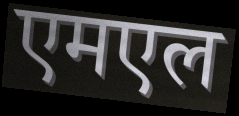
एमएल